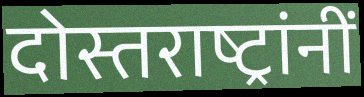
दोस्तराष्ट्रांनीं